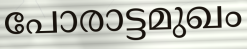
പോരാട്ടമുഖം